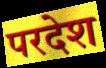
परदेश